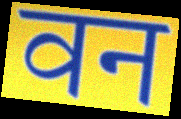
वन